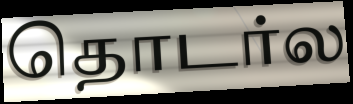
தொடர்ல